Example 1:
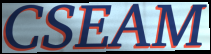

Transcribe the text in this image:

CSEAM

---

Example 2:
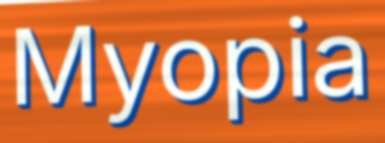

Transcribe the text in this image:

Myopia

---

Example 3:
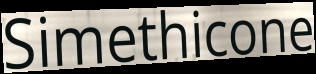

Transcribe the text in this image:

Simethicone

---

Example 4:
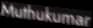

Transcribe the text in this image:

Muthukumar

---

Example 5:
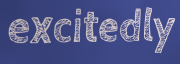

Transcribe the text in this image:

excitedly